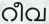
റീവ